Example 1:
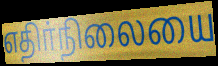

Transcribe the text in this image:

எதிர்நிலையை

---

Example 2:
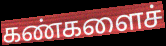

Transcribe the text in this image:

கண்களைச்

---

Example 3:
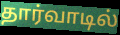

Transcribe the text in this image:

தார்வாடில்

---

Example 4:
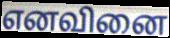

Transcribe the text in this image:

எனவினை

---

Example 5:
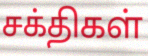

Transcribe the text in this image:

சக்திகள்